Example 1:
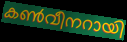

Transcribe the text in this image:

കൺവീനറായി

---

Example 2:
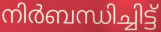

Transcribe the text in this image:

നിർബന്ധിച്ചിട്ട്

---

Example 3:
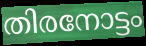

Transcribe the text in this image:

തിരനോട്ടം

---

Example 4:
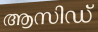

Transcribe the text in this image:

ആസിഡ്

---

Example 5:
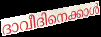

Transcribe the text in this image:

ദാവീദിനെക്കാൾ